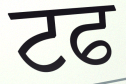
ਟਫ